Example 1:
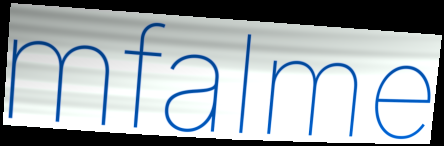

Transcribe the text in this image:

mfalme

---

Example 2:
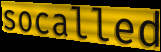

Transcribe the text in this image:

socalled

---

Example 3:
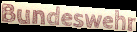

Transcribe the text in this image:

Bundeswehr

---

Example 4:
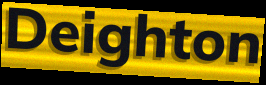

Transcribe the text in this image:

Deighton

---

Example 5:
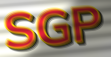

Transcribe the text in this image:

SGP